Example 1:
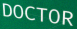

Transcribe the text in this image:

DOCTOR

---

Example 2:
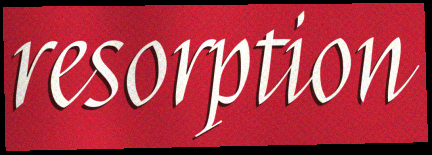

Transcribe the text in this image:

resorption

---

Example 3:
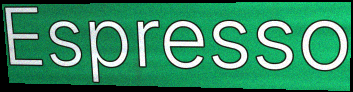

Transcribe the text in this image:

Espresso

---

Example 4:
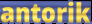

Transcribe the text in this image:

antorik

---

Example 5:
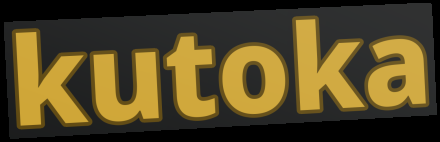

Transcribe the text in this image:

kutoka